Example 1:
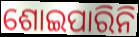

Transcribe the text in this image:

ଶୋଇପାରିନି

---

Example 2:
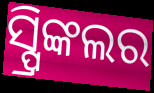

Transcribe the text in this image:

ସ୍ପ୍ରିଙ୍କଲର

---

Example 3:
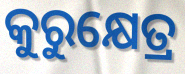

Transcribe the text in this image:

କୁରୁକ୍ଷେତ୍ର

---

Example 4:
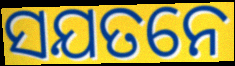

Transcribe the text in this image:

ସଯତନେ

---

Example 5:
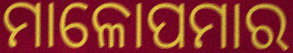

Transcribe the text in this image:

ମାଳୋପମାର